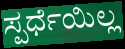
ಸ್ಪರ್ಧೆಯಿಲ್ಲ